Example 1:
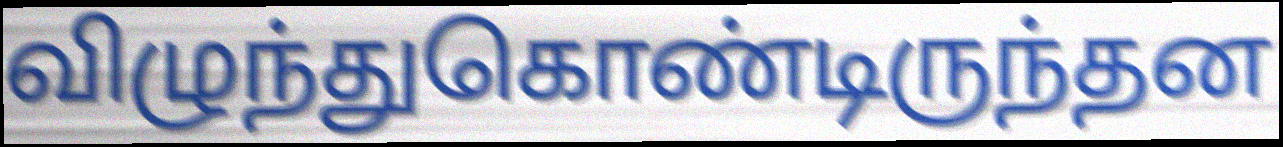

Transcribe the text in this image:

விழுந்துகொண்டிருந்தன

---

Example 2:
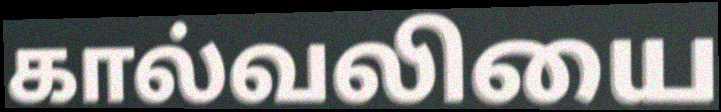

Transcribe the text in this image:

கால்வலியை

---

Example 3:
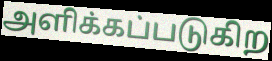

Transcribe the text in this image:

அளிக்கப்படுகிற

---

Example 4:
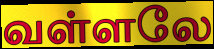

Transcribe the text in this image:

வள்ளலே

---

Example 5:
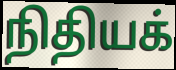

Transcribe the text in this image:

நிதியக்